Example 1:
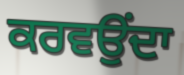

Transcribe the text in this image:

ਕਰਵਉਂਦਾ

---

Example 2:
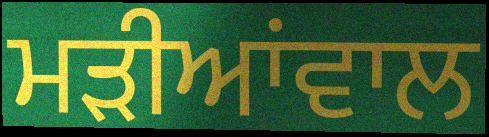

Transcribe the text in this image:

ਮੜੀਆਂਵਾਲ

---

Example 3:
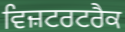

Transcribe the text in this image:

ਵਿਜ਼ਟਰਟਰੈਕ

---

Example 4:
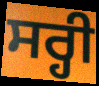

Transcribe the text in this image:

ਸਰ੍ਹੀ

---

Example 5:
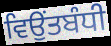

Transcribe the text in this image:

ਵਿਉਂਤਬੰਧੀ